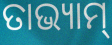
ତାଭ୍ୟାମ୍